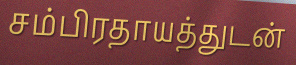
சம்பிரதாயத்துடன்